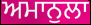
ਅਮਾਨੁਲਾ